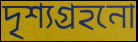
দৃশ্যগ্ৰহনো